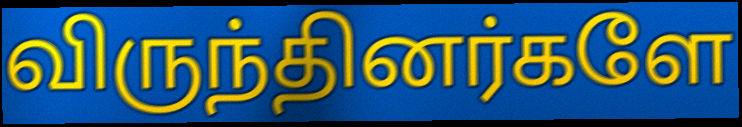
விருந்தினர்களே